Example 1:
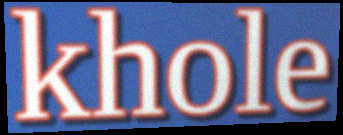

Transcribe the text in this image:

khole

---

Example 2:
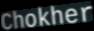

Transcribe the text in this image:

Chokher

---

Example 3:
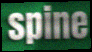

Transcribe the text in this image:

spine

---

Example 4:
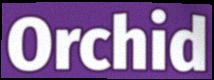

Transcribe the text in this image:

Orchid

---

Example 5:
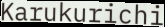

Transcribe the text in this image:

Karukurichi